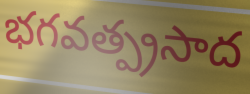
భగవత్ప్రసాద